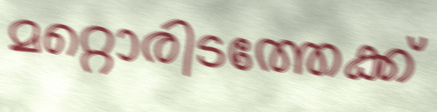
മറ്റൊരിടത്തേക്ക്